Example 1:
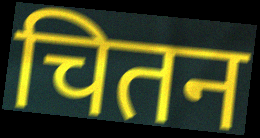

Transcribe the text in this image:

चितन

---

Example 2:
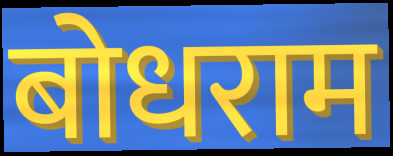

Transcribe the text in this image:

बोधराम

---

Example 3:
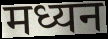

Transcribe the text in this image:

मध्यन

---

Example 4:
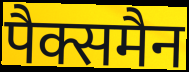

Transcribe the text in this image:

पैक्समैन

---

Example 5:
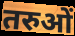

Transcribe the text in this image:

तरुओं